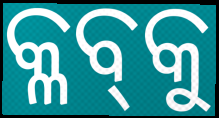
କ୍ଳବ୍‌କୁ